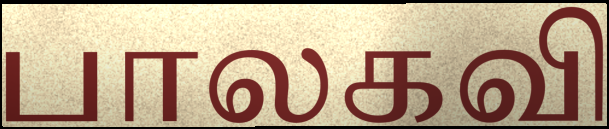
பாலகவி